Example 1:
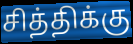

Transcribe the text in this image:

சித்திக்கு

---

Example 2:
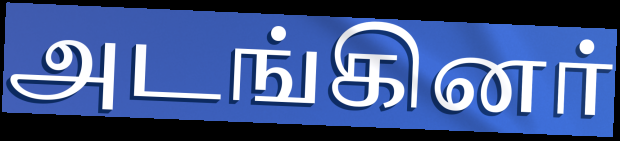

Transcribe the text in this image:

அடங்கினர்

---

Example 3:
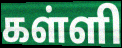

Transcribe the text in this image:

கள்ளி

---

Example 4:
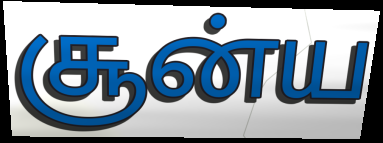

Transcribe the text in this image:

சூன்ய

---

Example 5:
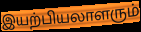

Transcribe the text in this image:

இயற்பியலாளரும்